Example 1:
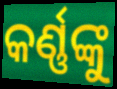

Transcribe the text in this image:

କର୍ଣ୍ଣଙ୍କୁ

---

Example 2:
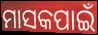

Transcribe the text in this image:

ମାସକପାଇଁ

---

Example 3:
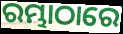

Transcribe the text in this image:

ରମ୍ଭାଠାରେ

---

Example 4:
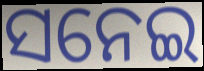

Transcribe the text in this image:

ସନେଇ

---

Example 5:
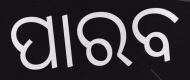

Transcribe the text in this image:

ପାରବ